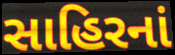
સાહિરનાં